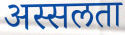
अस्सलता